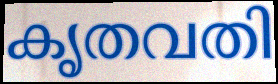
കൃതവതി